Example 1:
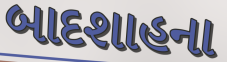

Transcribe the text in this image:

બાદશાહના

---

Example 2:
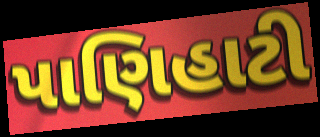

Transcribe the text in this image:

પાણિહાટી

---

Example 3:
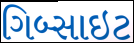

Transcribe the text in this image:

ગિબ્સાઇટ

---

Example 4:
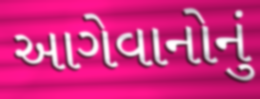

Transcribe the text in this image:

આગેવાનોનું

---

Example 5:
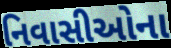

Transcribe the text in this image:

નિવાસીઓના